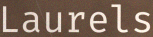
Laurels